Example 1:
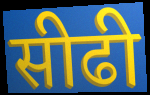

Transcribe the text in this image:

सीढी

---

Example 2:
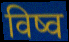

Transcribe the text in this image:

विष्व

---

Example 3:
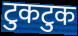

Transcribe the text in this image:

टुकटुक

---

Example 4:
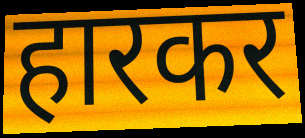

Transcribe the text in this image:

हारकर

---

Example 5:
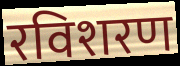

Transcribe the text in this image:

रविशरण